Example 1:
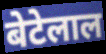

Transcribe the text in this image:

बेटेलाल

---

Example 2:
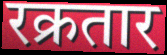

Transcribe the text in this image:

रक्रतार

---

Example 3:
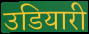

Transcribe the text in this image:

उडियारी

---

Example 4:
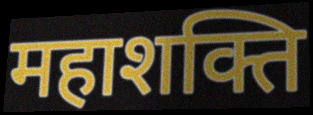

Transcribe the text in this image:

महाशक्ति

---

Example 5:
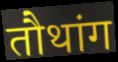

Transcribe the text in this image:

तौथांग